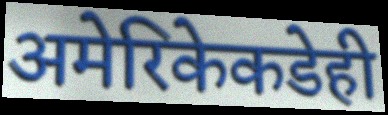
अमेरिकेकडेही